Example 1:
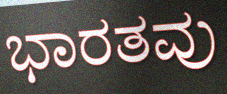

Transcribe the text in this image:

ಭಾರತವು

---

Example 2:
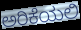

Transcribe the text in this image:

ಅರಿಕೆಯಲಿ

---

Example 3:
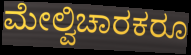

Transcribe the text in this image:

ಮೇಲ್ವಿಚಾರಕರೂ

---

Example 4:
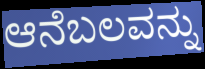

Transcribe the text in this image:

ಆನೆಬಲವನ್ನು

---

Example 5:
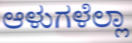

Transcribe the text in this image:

ಆಳುಗಳೆಲ್ಲಾ